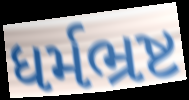
ધર્મભ્રષ્ટ